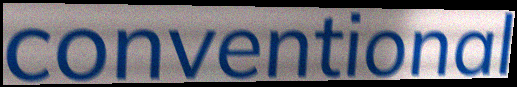
conventional